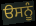
ੳਸਨੂੰ